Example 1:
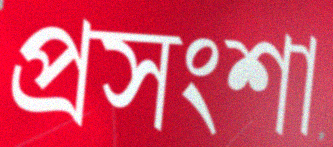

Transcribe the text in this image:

প্ৰসংশা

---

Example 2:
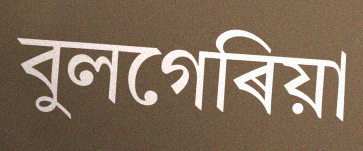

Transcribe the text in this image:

বুলগেৰিয়া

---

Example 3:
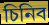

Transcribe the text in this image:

চিনিব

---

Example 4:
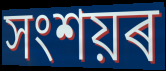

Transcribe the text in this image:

সংশয়ৰ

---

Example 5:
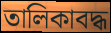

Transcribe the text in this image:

তালিকাবদ্ধ